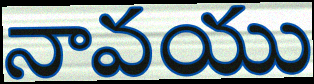
నావయు